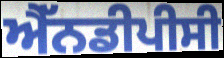
ਐੱਨਡੀਪੀਸੀ